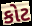
કોટ